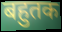
बहुतक